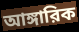
আঙ্গারিক